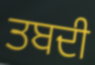
ਤਬਦੀ